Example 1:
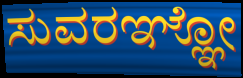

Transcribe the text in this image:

ಸುವರಞ್ಞೋ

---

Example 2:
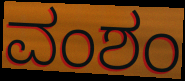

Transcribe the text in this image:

ವಂಶಂ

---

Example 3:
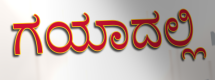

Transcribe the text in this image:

ಗಯಾದಲ್ಲಿ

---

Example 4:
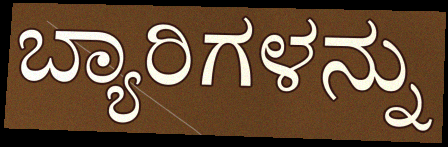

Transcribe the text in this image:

ಬ್ಯಾರಿಗಳನ್ನು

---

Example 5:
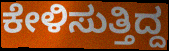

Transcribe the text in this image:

ಕೇಳಿಸುತ್ತಿದ್ದ